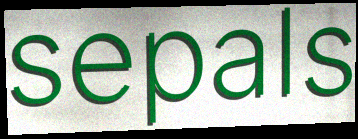
sepals